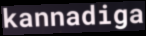
kannadiga